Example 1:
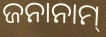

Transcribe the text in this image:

ଜନାନାମ୍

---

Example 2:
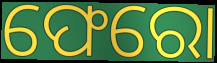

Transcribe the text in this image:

ଫେରୋ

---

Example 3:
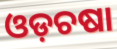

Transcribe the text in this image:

ଓଡ଼ଚଷା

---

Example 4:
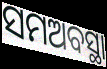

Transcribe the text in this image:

ସମଅବସ୍ଥା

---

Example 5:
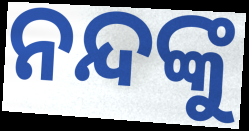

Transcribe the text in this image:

ନନ୍ଦଙ୍କୁ